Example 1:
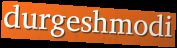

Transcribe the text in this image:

durgeshmodi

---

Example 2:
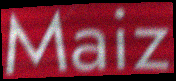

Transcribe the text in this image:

Maiz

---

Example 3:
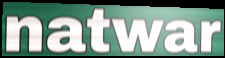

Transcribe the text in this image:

natwar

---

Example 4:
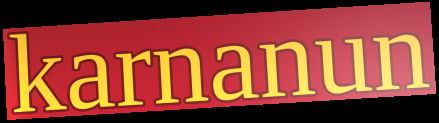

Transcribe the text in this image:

karnanun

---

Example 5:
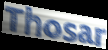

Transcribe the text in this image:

Thosar